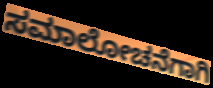
ಸಮಾಲೋಚನೆಗಾಗಿ